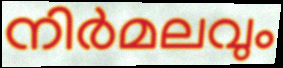
നിർമലവും